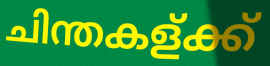
ചിന്തകള്ക്ക്